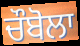
ਚੌਬੋਲਾ